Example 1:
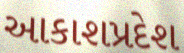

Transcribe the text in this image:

આકાશપ્રદેશ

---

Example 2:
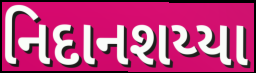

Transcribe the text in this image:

નિદાનશય્યા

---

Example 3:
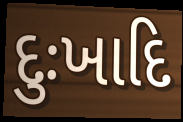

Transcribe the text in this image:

દુઃખાદિ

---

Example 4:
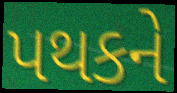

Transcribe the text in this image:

પથકને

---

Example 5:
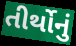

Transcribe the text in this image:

તીર્થોનું